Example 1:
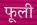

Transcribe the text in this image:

फूली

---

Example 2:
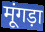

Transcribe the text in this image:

मूंगड़ा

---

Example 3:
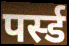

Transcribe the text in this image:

पर्स्ड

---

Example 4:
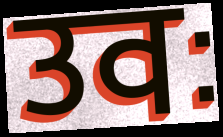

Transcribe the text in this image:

उवः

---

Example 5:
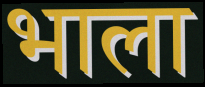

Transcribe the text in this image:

भाला